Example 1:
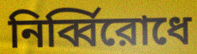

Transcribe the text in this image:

নির্ব্বিরোধে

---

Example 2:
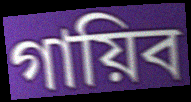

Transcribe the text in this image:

গায়িব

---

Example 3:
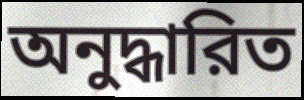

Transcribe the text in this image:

অনুদ্ধারিত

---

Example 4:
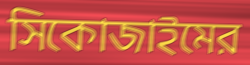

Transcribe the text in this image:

সিকোজাইমের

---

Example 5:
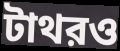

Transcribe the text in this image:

টাথরও